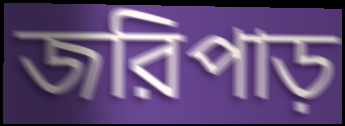
জরিপাড়